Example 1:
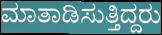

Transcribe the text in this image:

ಮಾತಾಡಿಸುತ್ತಿದ್ದರು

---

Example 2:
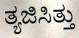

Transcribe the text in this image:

ತ್ಯಜಿಸಿತ್ತು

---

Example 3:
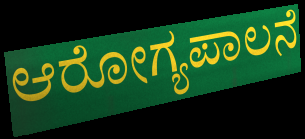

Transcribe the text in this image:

ಆರೋಗ್ಯಪಾಲನೆ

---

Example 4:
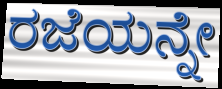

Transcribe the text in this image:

ರಜೆಯನ್ನೇ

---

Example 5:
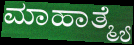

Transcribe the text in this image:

ಮಾಹಾತ್ಮ್ಯೆ